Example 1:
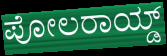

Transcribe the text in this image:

ಪೋಲರಾಯ್ಡ್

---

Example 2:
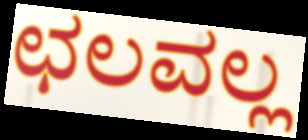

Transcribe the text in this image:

ಛಲವಲ್ಲ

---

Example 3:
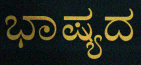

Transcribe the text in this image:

ಭಾಷ್ಯದ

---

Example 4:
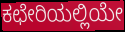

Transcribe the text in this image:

ಕಛೇರಿಯಲ್ಲಿಯೇ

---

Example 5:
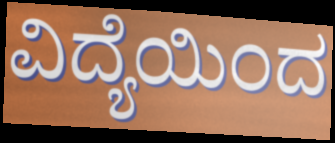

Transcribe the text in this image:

ವಿದ್ಯೆಯಿಂದ